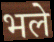
भले